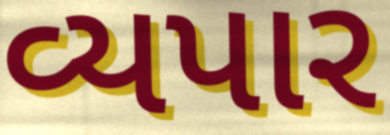
વ્યપાર